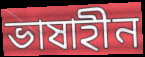
ভাষাহীন